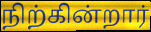
நிற்கின்றார்